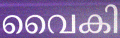
വൈകി